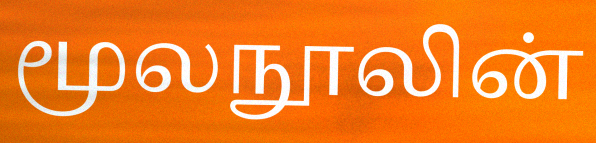
மூலநூலின்